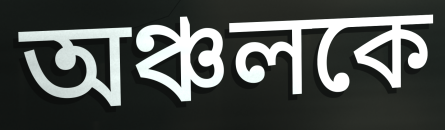
অঞ্চলকে